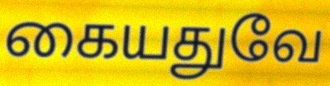
கையதுவே